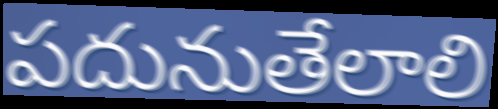
పదునుతేలాలి